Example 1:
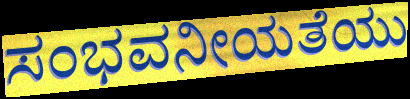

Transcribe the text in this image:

ಸಂಭವನೀಯತೆಯು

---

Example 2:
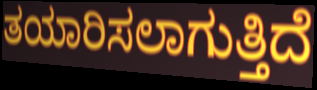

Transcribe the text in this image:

ತಯಾರಿಸಲಾಗುತ್ತಿದೆ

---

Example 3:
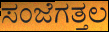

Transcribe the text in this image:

ಸಂಜೆಗತ್ತಲ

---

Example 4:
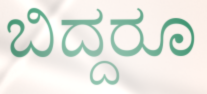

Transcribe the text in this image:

ಬಿದ್ದರೂ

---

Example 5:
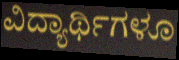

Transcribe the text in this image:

ವಿದ್ಯಾರ್ಥಿಗಳೂ